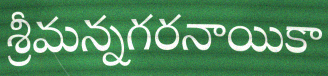
శ్రీమన్నగరనాయికా